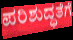
ಪರಿಶುದ್ಧತೆಗೆ